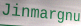
Jinmargnu